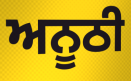
ਅਨੂਠੀ